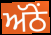
ਅੱਠੇਂ